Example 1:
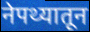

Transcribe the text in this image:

नेपथ्यातून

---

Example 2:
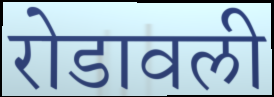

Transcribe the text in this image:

रोडावली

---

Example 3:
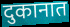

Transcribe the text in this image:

दुकानात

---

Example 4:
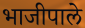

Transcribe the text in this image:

भाजीपाले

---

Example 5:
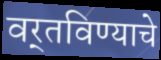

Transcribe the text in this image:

वर्तविण्याचे